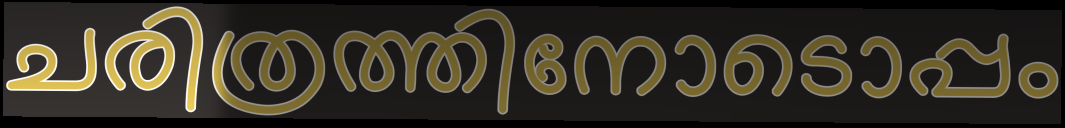
ചരിത്രത്തിനോടൊപ്പം